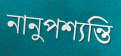
নানুপশ্যন্তি